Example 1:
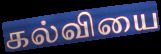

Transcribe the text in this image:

கல்வியை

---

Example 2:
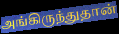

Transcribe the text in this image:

அங்கிருந்துதான்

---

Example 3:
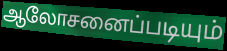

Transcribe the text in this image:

ஆலோசனைப்படியும்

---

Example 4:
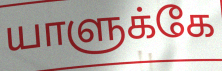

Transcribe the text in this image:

யாளுக்கே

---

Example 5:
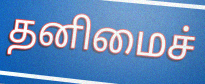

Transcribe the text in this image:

தனிமைச்